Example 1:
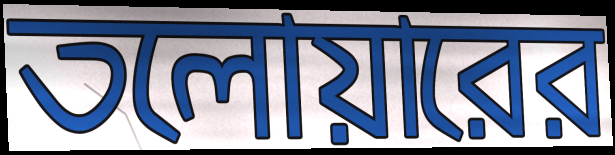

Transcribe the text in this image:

তলোয়ারের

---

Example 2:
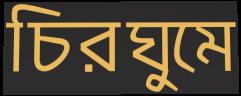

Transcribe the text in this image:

চিরঘুমে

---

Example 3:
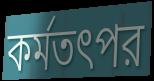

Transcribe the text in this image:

কর্মতৎপর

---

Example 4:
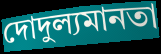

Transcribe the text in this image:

দোদুল্যমানতা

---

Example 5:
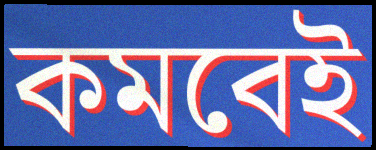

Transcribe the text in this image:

কমবেই